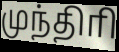
முந்திரி